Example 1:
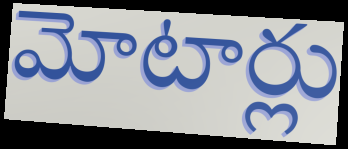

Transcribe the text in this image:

మోటార్లు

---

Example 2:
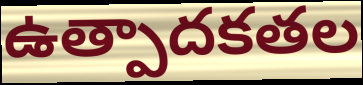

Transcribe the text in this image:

ఉత్పాదకతల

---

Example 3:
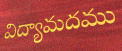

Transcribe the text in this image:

విద్యామదము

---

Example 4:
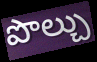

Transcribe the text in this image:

పొల్చు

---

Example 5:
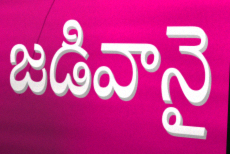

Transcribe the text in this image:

జడివానై